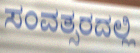
ಸಂವತ್ಸರದಲ್ಲಿ